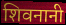
शिवनानी